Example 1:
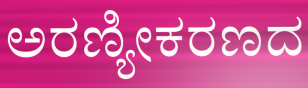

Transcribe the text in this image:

ಅರಣ್ಯೀಕರಣದ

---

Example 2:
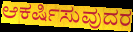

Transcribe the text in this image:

ಆಕರ್ಷಿಸುವುದರ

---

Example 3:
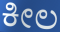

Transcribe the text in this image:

ಕೀಲ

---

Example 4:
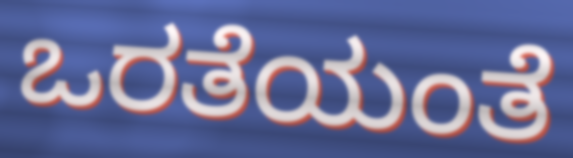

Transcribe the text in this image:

ಒರತೆಯಂತೆ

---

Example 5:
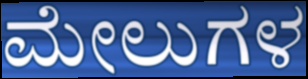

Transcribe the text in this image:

ಮೇಲುಗಳ